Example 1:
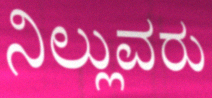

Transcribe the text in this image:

ನಿಲ್ಲುವರು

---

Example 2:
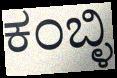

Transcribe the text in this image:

ಕಂಬ್ಳಿ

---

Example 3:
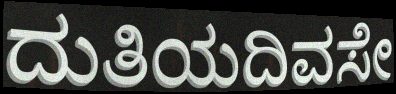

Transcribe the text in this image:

ದುತಿಯದಿವಸೇ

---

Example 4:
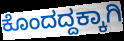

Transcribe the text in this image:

ಕೊಂದದ್ದಕ್ಕಾಗಿ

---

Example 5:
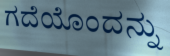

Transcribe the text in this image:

ಗದೆಯೊಂದನ್ನು